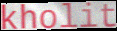
kholit